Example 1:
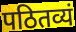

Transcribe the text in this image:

पठितव्यं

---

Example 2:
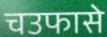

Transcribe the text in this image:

चउफासे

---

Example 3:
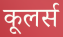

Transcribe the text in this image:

कूलर्स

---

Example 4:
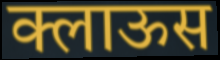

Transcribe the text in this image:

क्लाऊस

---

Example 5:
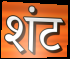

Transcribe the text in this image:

शंट